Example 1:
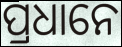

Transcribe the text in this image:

ପ୍ରଧାନେ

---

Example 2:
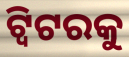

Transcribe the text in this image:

ଟ୍ୱିଟରକୁ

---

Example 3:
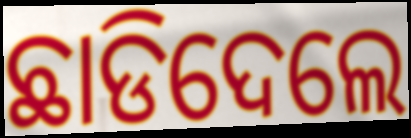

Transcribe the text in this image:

ଛାଡିଦେଲେ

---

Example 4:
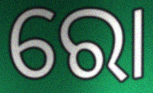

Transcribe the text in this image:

ରୋ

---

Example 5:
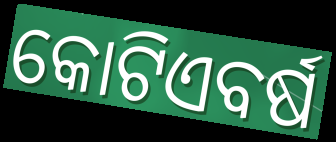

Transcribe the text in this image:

କୋଟିଏବର୍ଷ